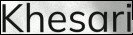
Khesari